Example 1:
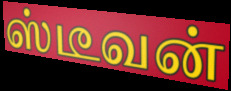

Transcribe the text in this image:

ஸ்டீவன்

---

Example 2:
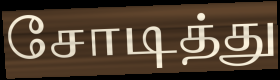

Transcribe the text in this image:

சோடித்து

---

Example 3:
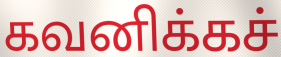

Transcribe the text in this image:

கவனிக்கச்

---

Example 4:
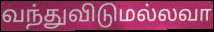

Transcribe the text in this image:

வந்துவிடுமல்லவா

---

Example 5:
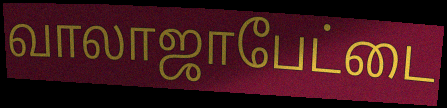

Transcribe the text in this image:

வாலாஜாபேட்டை